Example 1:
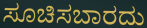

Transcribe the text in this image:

ಸೂಚಿಸಬಾರದು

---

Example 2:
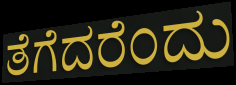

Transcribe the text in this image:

ತೆಗೆದರೆಂದು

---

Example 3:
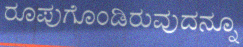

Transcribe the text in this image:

ರೂಪುಗೊಂಡಿರುವುದನ್ನೂ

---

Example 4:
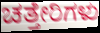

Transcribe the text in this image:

ಚತ್ತೇರಿಗಳು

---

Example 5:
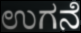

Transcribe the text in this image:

ಉಗನೆ